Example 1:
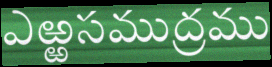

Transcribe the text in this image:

ఎఱ్ఱసముద్రము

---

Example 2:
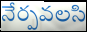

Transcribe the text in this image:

నేర్పవలసి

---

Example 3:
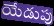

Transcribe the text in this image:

యేడుపు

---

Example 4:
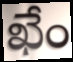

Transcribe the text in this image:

ఖేం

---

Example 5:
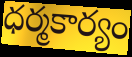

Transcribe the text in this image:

ధర్మకార్యం